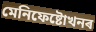
মেনিফেষ্টোখনৰ